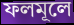
ফলমূলে